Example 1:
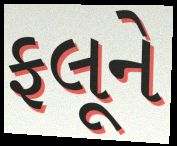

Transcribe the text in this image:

ફલૂને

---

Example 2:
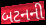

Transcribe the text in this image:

બટનની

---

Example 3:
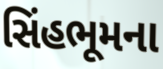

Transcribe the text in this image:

સિંહભૂમના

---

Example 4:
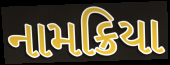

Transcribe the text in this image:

નામક્રિયા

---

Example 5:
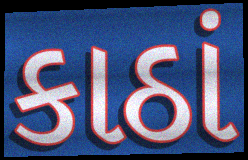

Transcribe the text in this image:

કાઠાં